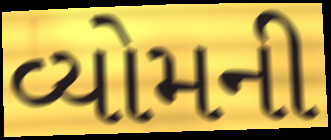
વ્યોમની